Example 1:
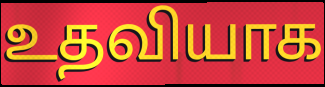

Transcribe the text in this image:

உதவியாக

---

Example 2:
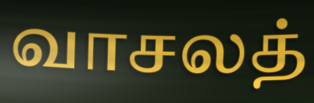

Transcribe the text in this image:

வாசலத்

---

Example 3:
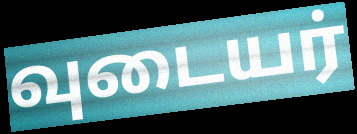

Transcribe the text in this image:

வுடையர்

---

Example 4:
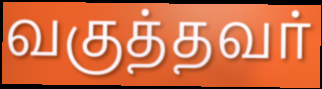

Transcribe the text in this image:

வகுத்தவர்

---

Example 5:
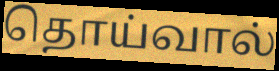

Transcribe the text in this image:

தொய்வால்